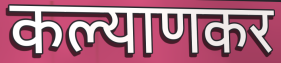
कल्याणकर